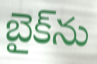
బైక్‌ను